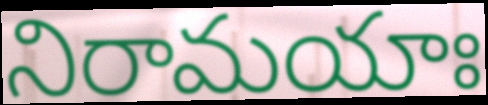
నిరామయాః